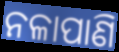
ନଳାପାଣି